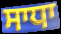
ਸਾਧਾ